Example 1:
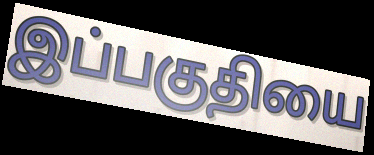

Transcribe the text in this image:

இப்பகுதியை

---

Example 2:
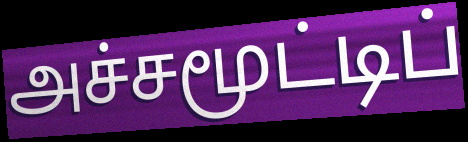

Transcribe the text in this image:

அச்சமூட்டிப்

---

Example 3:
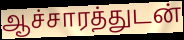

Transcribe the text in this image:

ஆச்சாரத்துடன்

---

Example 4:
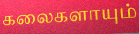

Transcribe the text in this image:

கலைகளாயும்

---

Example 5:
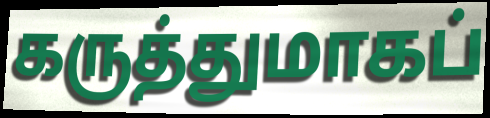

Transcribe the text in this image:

கருத்துமாகப்